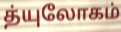
த்யுலோகம்